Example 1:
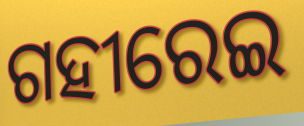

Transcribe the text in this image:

ଗହୀରେଇ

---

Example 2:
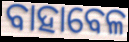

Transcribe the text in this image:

ବାହାବେଳ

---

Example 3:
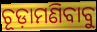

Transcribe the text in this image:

ଚୂଡ଼ାମଣିବାବୁ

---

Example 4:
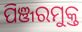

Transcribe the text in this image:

ପିଞ୍ଜରମୁକ୍ତ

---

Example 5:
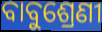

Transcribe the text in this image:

ବାବୁଶ୍ରେଣୀ